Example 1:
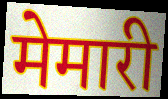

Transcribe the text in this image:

मेमारी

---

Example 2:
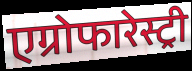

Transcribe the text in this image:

एग्रोफारेस्ट्री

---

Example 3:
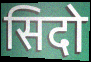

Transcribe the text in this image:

सिदो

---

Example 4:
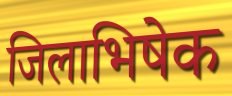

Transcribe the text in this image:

जिलाभिषेक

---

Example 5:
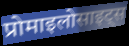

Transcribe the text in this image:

प्रोमाइलोसाइट्स